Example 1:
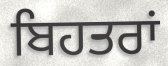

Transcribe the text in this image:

ਬਿਹਤਰਾਂ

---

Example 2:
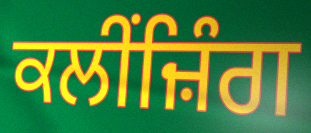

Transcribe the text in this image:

ਕਲੀਂਜ਼ਿੰਗ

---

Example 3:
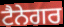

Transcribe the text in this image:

ਟੈਨੇਗਰ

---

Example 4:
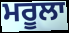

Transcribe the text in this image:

ਮਰੂਲਾ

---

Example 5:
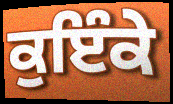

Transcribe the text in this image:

ਕੁਇੰਕੇ